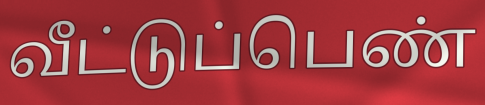
வீட்டுப்பெண்